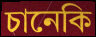
চানেকি